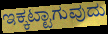
ಇಕ್ಕಟ್ಟಾಗುವುದು